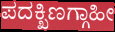
ಪದಕ್ಖಿಣಗ್ಗಾಹೀ